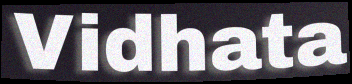
Vidhata